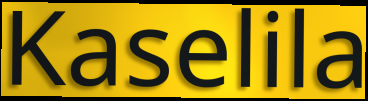
Kaselila